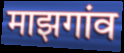
माझगांव